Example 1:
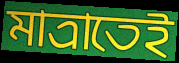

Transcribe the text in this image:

মাত্রাতেই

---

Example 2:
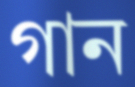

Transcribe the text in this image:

গান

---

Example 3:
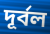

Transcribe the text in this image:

দূর্বল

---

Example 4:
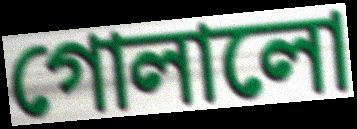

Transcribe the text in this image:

গোলালো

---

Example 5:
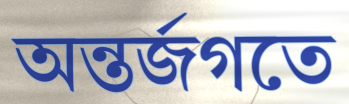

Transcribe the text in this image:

অন্তর্জগতে